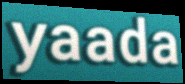
yaada